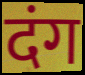
दंग